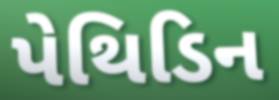
પેથિડિન